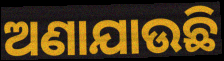
ଅଣାଯାଉଛି